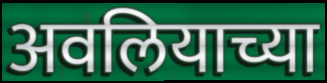
अवलियाच्या